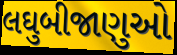
લઘુબીજાણુઓ